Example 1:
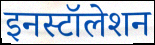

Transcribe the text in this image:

इनस्टॉलेशन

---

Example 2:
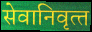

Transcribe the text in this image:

सेवानिवृत्‍त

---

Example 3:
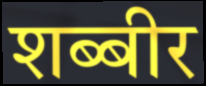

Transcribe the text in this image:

शब्बीर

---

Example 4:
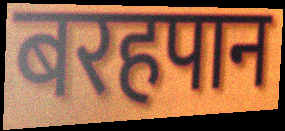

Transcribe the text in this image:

बरहपान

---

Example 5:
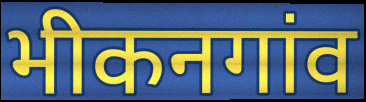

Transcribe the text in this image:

भीकनगांव